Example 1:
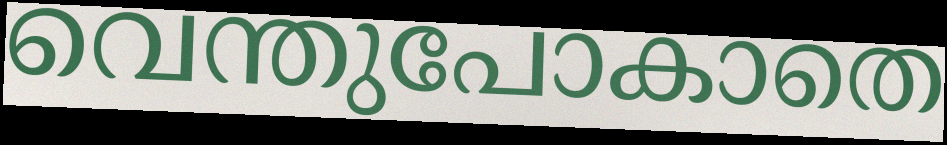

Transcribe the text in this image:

വെന്തുപോകാതെ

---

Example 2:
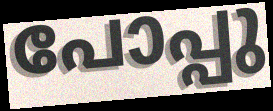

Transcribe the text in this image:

പോപ്പു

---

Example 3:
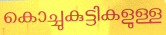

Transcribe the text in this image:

കൊച്ചുകുട്ടികളുള്ള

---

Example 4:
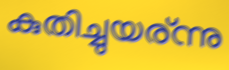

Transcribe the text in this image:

കുതിച്ചുയര്ന്നു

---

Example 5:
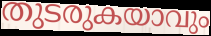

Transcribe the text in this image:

തുടരുകയാവും